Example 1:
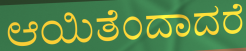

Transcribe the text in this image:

ಆಯಿತೆಂದಾದರೆ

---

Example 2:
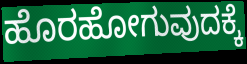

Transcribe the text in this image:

ಹೊರಹೋಗುವುದಕ್ಕೆ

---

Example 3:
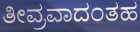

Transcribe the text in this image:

ತೀವ್ರವಾದಂತಹ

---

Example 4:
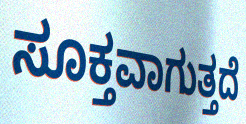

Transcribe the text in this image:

ಸೂಕ್ತವಾಗುತ್ತದೆ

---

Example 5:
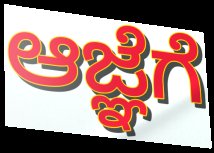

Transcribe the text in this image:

ಆಜ್ಞೆಗೆ